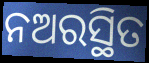
ନଅରସ୍ଥିତ